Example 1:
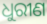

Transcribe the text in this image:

ଧୁରୀଣ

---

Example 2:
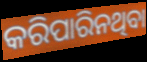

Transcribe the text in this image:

କରିପାରିନଥିବା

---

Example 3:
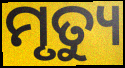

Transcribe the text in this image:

ମୃତ୍ୟୁ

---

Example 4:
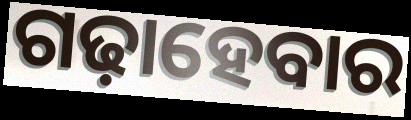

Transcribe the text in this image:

ଗଢ଼ାହେବାର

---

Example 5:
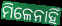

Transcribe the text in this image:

ମିଳେନାହିଁ